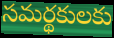
సమర్థకులకు